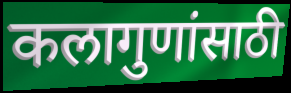
कलागुणांसाठी